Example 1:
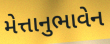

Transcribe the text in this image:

મેત્તાનુભાવેન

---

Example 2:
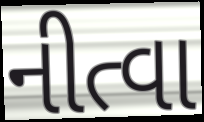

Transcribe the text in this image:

નીત્વા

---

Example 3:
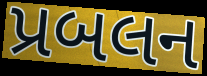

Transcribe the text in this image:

પ્રબલન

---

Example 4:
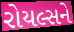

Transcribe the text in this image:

રોયલ્સને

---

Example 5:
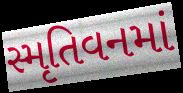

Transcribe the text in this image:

સ્મૃતિવનમાં